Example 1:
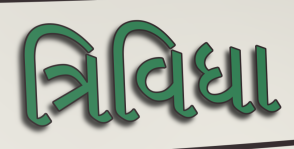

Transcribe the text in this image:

ત્રિવિધા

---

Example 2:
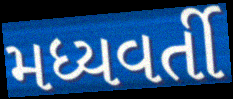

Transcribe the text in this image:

મધ્યવર્તી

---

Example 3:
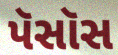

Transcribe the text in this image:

પૅસૉસ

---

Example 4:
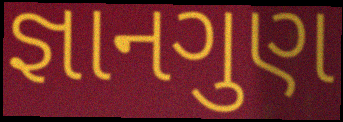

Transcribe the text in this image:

જ્ઞાનગુણ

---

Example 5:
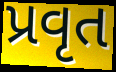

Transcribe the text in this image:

પ્રવૃત